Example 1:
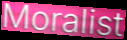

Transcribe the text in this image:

Moralist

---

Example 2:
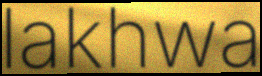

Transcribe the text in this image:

lakhwa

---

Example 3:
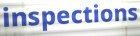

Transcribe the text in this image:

inspections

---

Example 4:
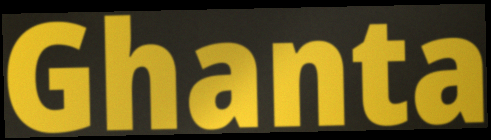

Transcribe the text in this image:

Ghanta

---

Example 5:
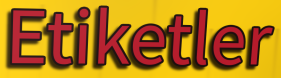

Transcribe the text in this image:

Etiketler